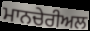
ਮਾਨਚੇਰੀਅਲ